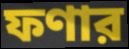
ফণার